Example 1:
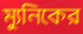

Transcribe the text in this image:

ম্যুনিকের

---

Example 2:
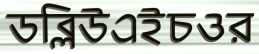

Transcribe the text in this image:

ডব্লিউএইচওর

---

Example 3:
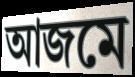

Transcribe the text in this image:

আজমে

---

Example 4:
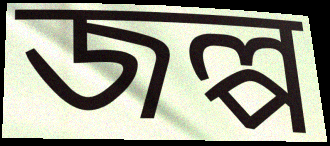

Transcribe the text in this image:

জল্প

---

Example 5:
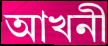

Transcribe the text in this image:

আখনী